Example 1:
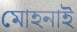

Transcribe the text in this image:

মোহনাই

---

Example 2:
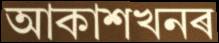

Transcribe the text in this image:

আকাশখনৰ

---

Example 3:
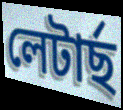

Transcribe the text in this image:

লেটাৰ্ছ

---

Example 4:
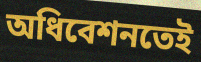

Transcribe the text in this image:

অধিবেশনতেই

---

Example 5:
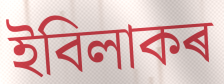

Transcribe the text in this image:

ইবিলাকৰ